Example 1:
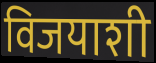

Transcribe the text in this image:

विजयाशी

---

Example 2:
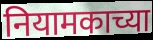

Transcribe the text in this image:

नियामकाच्या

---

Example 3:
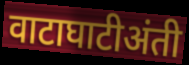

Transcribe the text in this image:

वाटाघाटीअंती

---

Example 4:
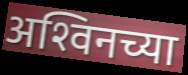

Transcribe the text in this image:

अश्विनच्या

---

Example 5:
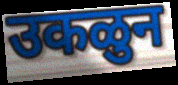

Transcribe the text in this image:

उकळुन